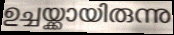
ഉച്ചയ്ക്കായിരുന്നു